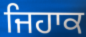
ਜਿਹਾਕ